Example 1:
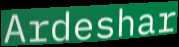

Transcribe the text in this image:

Ardeshar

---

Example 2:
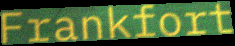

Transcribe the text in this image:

Frankfort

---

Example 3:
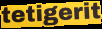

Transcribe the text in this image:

tetigerit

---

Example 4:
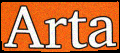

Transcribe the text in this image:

Arta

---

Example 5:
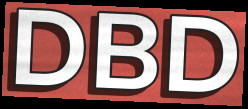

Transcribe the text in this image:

DBD